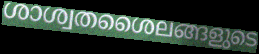
ശാശ്വതശൈലങ്ങളുടെ